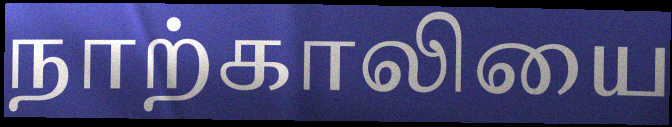
நாற்காலியை